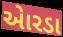
એારડા